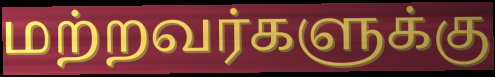
மற்றவர்களுக்கு